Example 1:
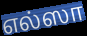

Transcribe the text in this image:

எல்ஸா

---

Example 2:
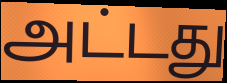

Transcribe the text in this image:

அட்டது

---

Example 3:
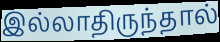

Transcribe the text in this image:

இல்லாதிருந்தால்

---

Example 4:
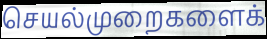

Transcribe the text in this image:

செயல்முறைகளைக்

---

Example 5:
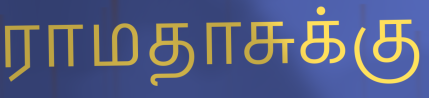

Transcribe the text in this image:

ராமதாசுக்கு